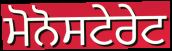
ਮੋਨੋਸਟੇਰੇਟ